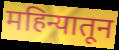
महिन्यातून